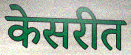
केसरीत